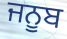
ਜਨੂਬ